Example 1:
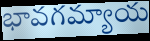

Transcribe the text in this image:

భావగమ్యాయ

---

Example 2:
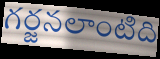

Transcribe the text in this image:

గర్జనలాంటిది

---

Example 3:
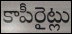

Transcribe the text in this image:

కాపీరైట్లు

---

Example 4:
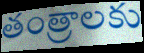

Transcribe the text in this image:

తంత్రాలకు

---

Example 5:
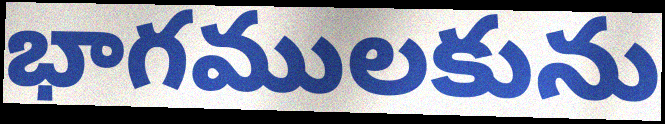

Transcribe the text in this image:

భాగములకును